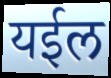
यईल